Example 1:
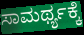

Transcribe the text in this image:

ಸಾಮರ್ಥ್ಯಕ್ಕೆ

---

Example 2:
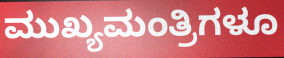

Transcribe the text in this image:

ಮುಖ್ಯಮಂತ್ರಿಗಳೂ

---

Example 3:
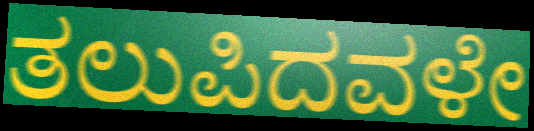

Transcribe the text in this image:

ತಲುಪಿದವಳೇ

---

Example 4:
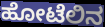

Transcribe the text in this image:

ಹೋಟೆಲಿನ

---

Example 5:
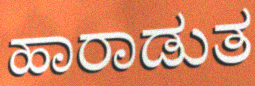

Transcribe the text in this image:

ಹಾರಾಡುತ